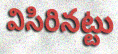
విసిరినట్టు